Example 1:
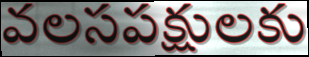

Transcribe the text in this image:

వలసపక్షులకు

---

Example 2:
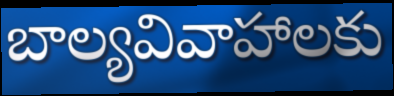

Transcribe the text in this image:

బాల్యవివాహాలకు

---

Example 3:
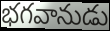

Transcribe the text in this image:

భగవానుడు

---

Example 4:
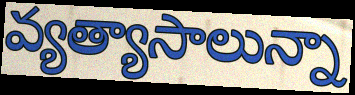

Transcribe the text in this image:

వ్యత్యాసాలున్నా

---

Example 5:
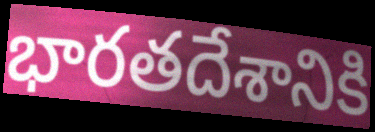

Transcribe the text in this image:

భారతదేశానికి